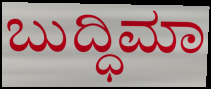
ಬುದ್ಧಿಮಾ